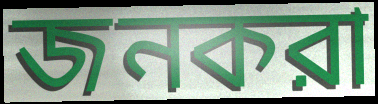
জনকরা